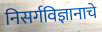
निसर्गविज्ञानाचे